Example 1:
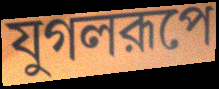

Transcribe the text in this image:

যুগলরূপে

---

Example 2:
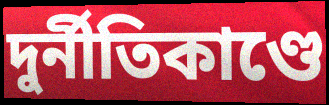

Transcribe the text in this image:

দুর্নীতিকাণ্ডে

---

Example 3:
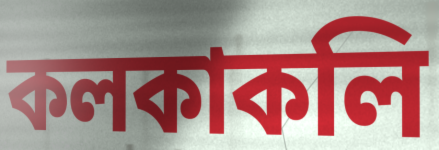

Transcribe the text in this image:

কলকাকলি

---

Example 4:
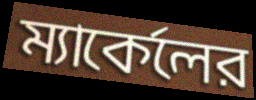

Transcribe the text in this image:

ম্যার্কেলের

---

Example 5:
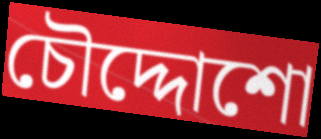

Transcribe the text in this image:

চৌদ্দোশো